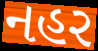
નહર